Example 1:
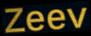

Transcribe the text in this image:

Zeev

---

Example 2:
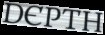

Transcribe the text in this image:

DEPTH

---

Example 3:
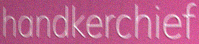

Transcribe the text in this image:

handkerchief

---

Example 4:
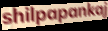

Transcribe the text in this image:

shilpapankaj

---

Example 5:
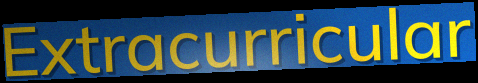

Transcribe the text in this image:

Extracurricular